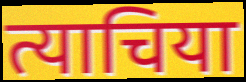
त्याचिया